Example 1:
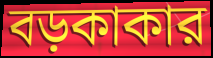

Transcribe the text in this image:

বড়কাকার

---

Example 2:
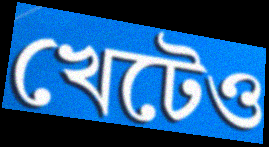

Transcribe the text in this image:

খেটেও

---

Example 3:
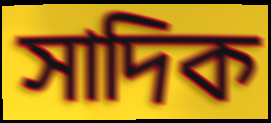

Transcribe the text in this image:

সাদিক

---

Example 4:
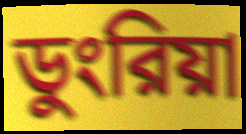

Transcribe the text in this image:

ডুংরিয়া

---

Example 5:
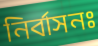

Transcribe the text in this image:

নির্বাসনঃ